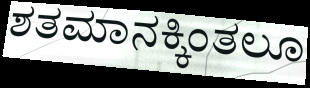
ಶತಮಾನಕ್ಕಿಂತಲೂ